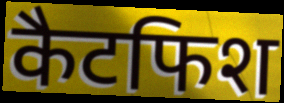
कैटफिश